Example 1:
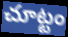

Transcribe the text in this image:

చూట్టం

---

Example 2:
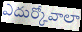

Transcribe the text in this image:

ఎదుర్కోవాలా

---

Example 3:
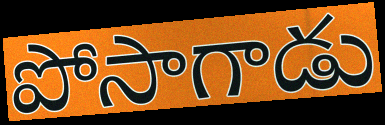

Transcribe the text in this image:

పోసాగాడు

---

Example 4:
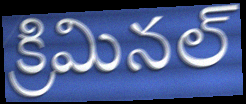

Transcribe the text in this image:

క్రిమినల్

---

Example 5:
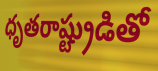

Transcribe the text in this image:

ధృతరాష్ట్రుడితో